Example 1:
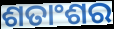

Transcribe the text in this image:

ଶତାଂଶର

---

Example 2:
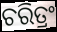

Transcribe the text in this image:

ଚରିତ୍ରଂ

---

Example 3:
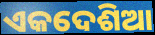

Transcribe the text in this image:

ଏକଦେଶିଆ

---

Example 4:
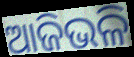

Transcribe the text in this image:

ଆଜିଭଳି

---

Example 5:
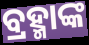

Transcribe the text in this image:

ବ୍ରହ୍ମାଙ୍କ